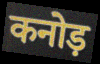
कनोड़